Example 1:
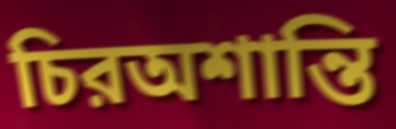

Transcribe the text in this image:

চিরঅশান্তি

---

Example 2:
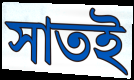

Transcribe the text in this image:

সাতই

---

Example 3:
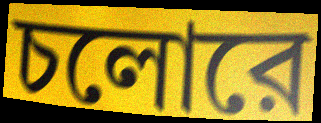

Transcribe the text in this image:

চলোরে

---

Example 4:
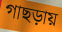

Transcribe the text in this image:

গাছড়ায়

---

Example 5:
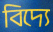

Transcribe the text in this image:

বিদ্যে